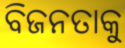
ବିଜନତାକୁ